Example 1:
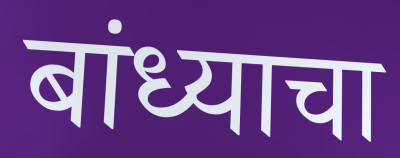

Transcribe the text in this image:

बांध्याचा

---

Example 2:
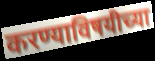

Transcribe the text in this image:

करण्याविषयीच्या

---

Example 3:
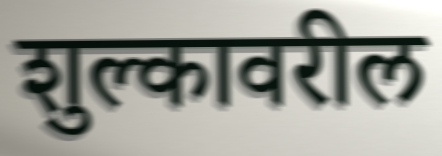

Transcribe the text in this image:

शुल्कावरील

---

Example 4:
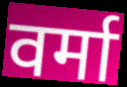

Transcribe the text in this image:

वर्मा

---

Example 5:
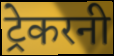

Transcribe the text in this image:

ट्रेकरनी